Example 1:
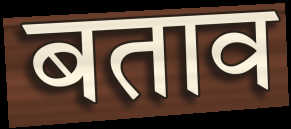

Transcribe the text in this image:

बताव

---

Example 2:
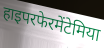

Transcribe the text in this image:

हाइपरफेरमेंटेमिया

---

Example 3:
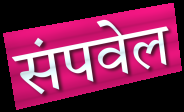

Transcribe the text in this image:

संपवेल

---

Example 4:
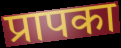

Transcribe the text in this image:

प्रापका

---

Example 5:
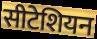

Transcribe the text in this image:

सीटेशियन